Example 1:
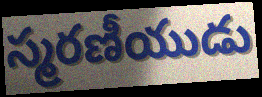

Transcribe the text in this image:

స్మరణీయుడు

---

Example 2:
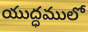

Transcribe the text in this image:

యుద్ధములో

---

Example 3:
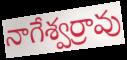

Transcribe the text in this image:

నాగేశ్వర్రావు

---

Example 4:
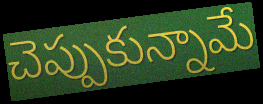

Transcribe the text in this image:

చెప్పుకున్నామే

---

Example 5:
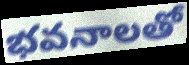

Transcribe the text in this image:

భవనాలతో